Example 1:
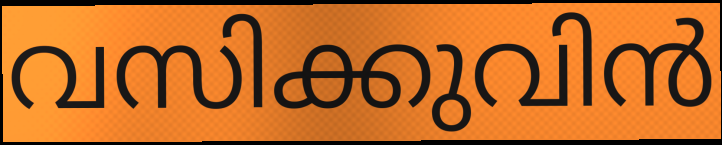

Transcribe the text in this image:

വസിക്കുവിൻ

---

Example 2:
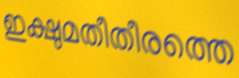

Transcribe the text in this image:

ഇക്ഷുമതീതീരത്തെ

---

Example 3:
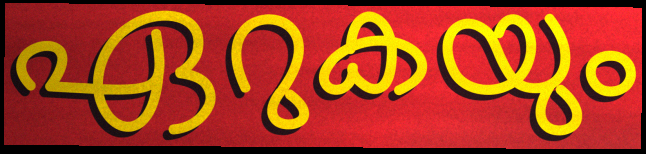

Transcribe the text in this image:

ഏറുകയും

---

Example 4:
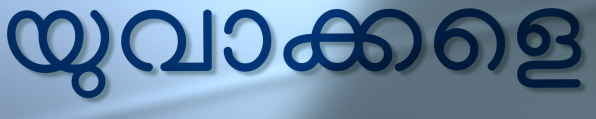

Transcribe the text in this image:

യുവാക്കളെ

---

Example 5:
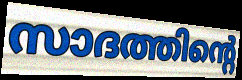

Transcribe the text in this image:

സാദത്തിന്റെ